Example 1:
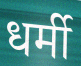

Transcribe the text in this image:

धर्मी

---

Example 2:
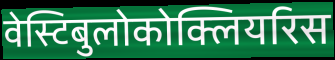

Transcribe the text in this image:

वेस्टिबुलोकोक्लियरिस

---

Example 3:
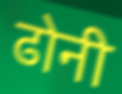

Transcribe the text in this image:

ढोनी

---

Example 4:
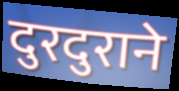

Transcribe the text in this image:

दुरदुराने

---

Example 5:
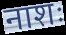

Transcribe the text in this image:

नाशः